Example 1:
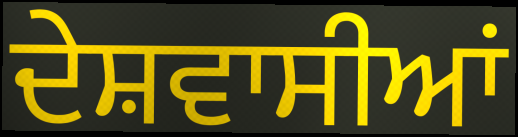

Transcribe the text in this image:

ਦੇਸ਼ਵਾਸੀਆਂ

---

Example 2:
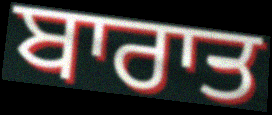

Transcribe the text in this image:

ਬਾਰਾਤ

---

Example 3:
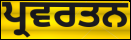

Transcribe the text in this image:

ਪ੍ਰਵਰਤਨ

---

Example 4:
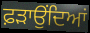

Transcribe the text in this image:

ਫ਼ੜਾਉਂਦਿਆਂ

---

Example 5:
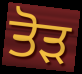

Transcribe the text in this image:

ਤੋਡ਼